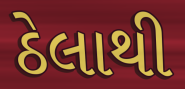
ઠેલાથી